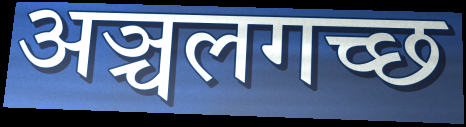
अञ्चलगच्छ